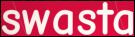
swasta